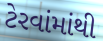
ટેરવાંમાંથી